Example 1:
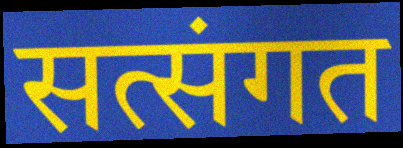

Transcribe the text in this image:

सत्संगत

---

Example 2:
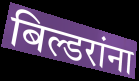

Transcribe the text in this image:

बिल्डरांना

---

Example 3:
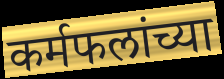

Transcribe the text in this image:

कर्मफलांच्या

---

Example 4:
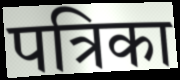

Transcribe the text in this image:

पत्रिका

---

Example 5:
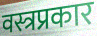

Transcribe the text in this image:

वस्त्रप्रकार